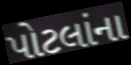
પોટલાંના